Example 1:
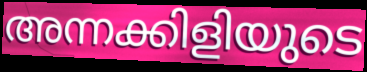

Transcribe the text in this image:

അന്നക്കിളിയുടെ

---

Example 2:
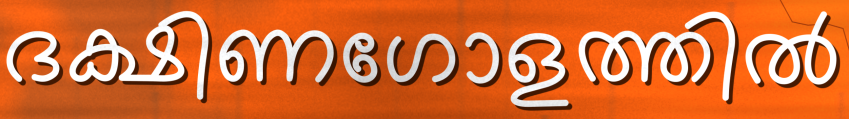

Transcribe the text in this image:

ദക്ഷിണഗോളത്തിൽ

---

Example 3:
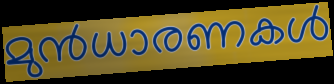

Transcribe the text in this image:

മുൻധാരണകൾ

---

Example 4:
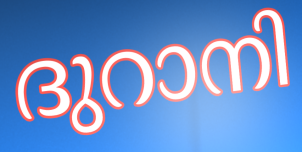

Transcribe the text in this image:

ദുറാനി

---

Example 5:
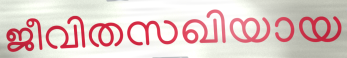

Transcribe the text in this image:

ജീവിതസഖിയായ